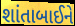
શાંતાબાઈને